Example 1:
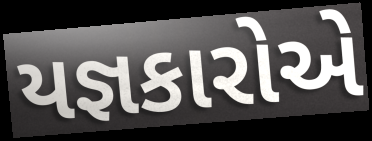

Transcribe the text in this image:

યજ્ઞકારોએ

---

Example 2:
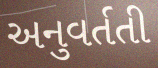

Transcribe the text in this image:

અનુવર્તતી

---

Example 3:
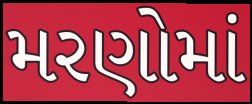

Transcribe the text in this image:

મરણોમાં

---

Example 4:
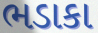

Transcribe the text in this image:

ભડાકા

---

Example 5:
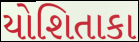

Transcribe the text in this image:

યોશિતાકા